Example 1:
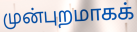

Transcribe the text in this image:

முன்புறமாகக்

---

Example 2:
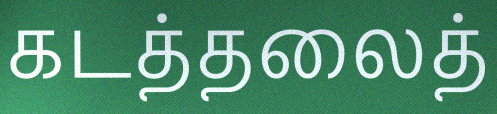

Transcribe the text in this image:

கடத்தலைத்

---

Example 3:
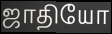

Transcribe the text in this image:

ஜாதியோ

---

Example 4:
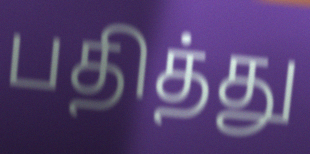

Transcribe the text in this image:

பதித்து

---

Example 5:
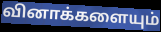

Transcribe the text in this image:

வினாக்களையும்